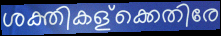
ശക്തികള്ക്കെതിരേ